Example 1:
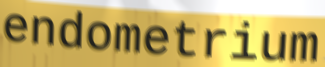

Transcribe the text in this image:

endometrium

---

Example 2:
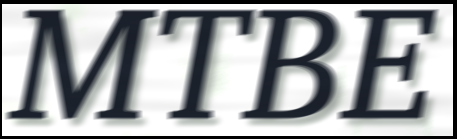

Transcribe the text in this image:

MTBE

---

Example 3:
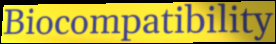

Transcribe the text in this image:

Biocompatibility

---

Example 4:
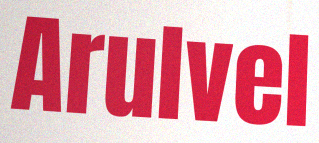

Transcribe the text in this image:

Arulvel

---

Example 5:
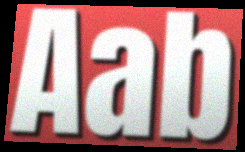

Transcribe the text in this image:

Aab